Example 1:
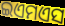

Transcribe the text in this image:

ଇଏମଏସ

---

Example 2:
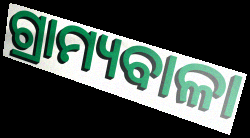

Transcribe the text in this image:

ଗ୍ରାମ୍ୟବାଳା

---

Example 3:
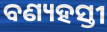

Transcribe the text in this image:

ବଣ୍ୟହସ୍ତୀ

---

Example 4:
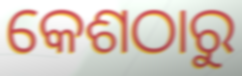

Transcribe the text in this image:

କେଶଠାରୁ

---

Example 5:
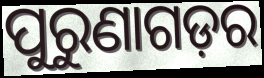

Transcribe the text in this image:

ପୁରୁଣାଗଡ଼ର